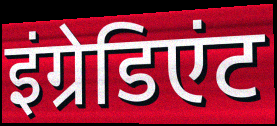
इंग्रेडिएंट